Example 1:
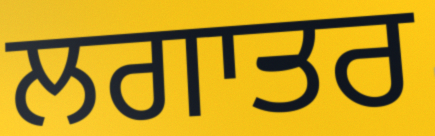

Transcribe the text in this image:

ਲਗਾਤਰ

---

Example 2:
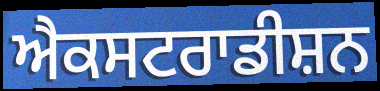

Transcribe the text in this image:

ਐਕਸਟਰਾਡੀਸ਼ਨ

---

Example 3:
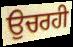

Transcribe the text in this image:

ਉਚਰਹੀ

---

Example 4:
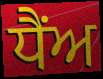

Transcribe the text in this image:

ਧੈਂਅ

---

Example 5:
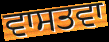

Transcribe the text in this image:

ਵਾਸਤਵਾ